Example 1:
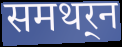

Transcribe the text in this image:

समथर्न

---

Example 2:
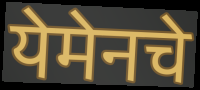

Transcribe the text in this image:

येमेनचे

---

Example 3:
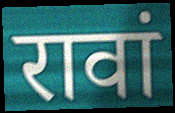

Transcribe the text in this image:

रावां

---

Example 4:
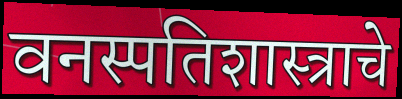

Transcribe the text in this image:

वनस्पतिशास्त्राचे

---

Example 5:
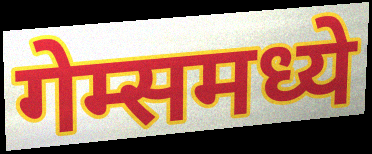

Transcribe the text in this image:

गेम्समध्ये